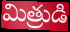
మిత్రుడి